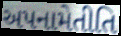
અપનામેતીતિ